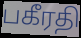
பகீரதி